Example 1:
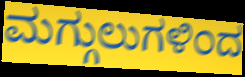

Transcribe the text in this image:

ಮಗ್ಗುಲುಗಳಿಂದ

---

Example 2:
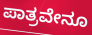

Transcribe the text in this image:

ಪಾತ್ರವೇನೂ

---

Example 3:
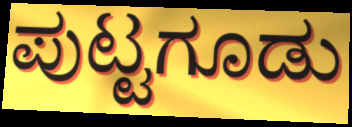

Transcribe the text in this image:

ಪುಟ್ಟಗೂಡು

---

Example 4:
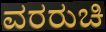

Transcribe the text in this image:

ವರರುಚಿ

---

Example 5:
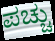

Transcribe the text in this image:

ಪಚ್ಚು